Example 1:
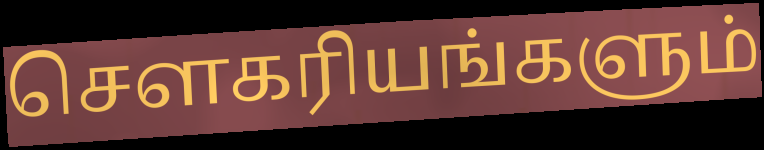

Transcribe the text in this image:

சௌகரியங்களும்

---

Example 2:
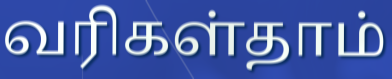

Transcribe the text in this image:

வரிகள்தாம்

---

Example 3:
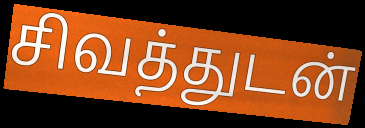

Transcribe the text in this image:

சிவத்துடன்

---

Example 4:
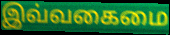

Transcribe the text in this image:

இவ்வகைமை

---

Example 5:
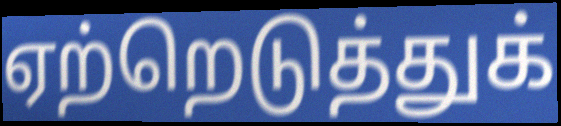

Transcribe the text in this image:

ஏற்றெடுத்துக்